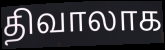
திவாலாக